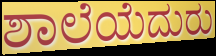
ಶಾಲೆಯೆದುರು